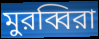
মুরব্বিরা